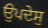
ਉਪਦੇਸੁ